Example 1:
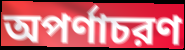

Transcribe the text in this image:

অপর্ণাচরণ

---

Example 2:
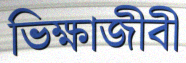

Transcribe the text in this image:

ভিক্ষাজীবী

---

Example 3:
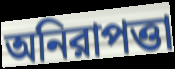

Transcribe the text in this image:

অনিরাপত্তা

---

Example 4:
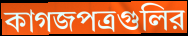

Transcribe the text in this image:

কাগজপত্রগুলির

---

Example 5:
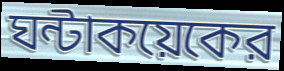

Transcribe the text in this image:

ঘন্টাকয়েকের